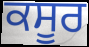
ਕਸੂਰ